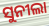
ସୁନୀଲା